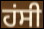
ਹਂਸੀ